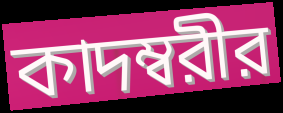
কাদম্বরীর